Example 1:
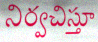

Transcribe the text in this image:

నిర్వచిస్తూ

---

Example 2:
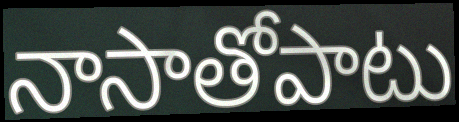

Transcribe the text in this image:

నాసాతోపాటు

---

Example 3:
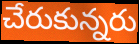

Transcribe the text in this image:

చేరుకున్నరు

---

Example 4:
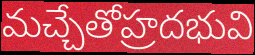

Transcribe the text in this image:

మచ్చేతోహ్రదభువి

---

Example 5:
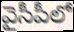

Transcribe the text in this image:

వైసీపీలో